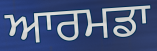
ਆਰਮਡਾ